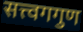
सत्त्वगगुण